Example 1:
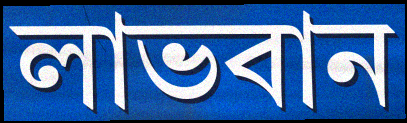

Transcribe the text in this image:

লাভবান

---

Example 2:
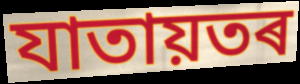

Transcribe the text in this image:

যাতায়তৰ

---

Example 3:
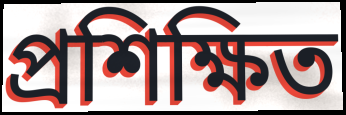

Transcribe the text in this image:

প্ৰশিক্ষিত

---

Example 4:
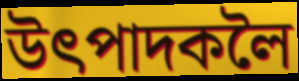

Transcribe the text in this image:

উৎপাদকলৈ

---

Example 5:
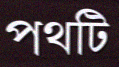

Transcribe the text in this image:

পথটি